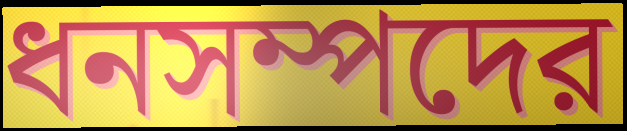
ধনসম্পদের